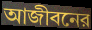
আজীবনের